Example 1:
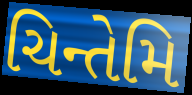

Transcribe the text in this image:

ચિન્તેમિ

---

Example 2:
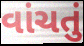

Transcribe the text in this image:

વાંચતું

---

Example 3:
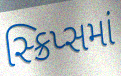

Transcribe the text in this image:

સ્ક્રિપ્સમાં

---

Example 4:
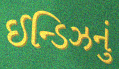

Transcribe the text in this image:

ઈન્ડિઝનું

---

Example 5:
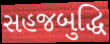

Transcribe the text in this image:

સહજબુદ્ધિ